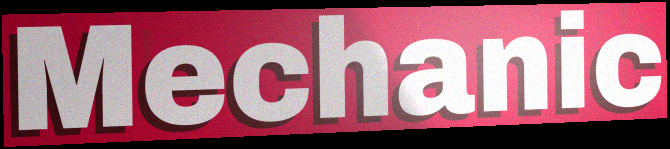
Mechanic